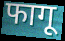
फागू